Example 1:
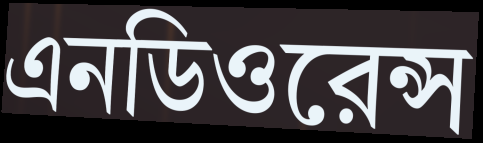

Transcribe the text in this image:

এনডিওরেন্স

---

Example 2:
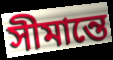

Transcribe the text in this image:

সীমান্তে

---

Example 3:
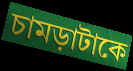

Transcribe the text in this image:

চামড়াটাকে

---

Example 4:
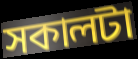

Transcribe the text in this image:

সকালটা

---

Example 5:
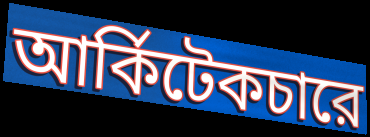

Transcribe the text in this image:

আর্কিটেকচারে